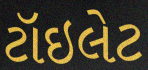
ટૉઇલેટ